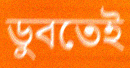
ডুবতেই